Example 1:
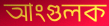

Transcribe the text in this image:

আংগুলক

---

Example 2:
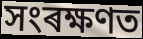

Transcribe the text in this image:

সংৰক্ষণত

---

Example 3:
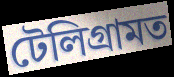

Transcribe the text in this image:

টেলিগ্ৰামত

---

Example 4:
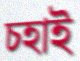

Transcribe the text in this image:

চহাই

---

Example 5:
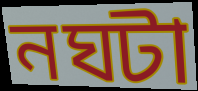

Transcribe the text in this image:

নঘটা